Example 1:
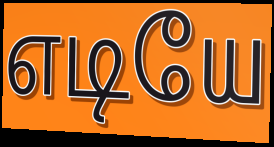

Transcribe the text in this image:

எடியே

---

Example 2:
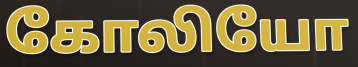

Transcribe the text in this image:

கோலியோ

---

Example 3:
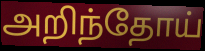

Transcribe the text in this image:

அறிந்தோய்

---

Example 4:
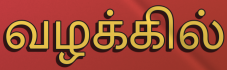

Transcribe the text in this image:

வழக்கில்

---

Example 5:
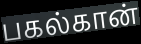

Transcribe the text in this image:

பகல்கான்